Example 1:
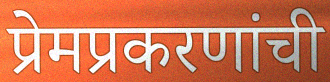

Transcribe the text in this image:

प्रेमप्रकरणांची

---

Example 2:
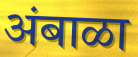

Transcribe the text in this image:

अंबाळा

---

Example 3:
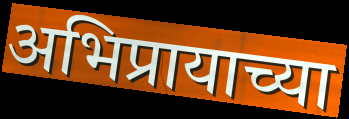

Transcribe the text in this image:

अभिप्रायाच्या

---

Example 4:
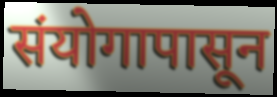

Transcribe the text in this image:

संयोगापासून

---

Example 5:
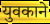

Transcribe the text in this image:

युवकाने